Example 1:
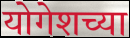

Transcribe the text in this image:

योगेशच्या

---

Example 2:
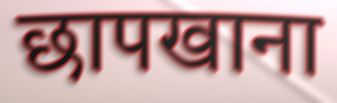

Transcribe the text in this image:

छापखाना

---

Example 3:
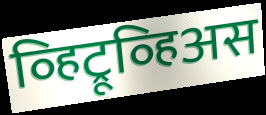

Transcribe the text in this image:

व्हिट्रूव्हिअस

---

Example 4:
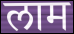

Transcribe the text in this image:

लाम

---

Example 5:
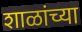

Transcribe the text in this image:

शाळांच्या